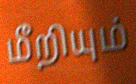
மீறியும்